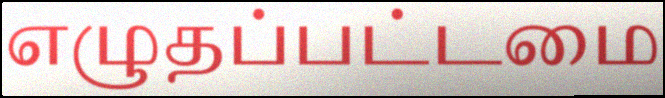
எழுதப்பட்டமை